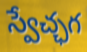
స్వేచ్ఛగ